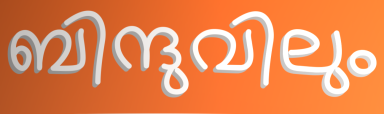
ബിന്ദുവിലും